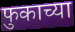
फुकाच्या